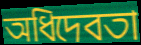
অধিদেবতা